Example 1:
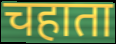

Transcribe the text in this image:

चहाता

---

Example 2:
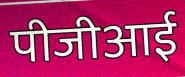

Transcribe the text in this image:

पीजीआई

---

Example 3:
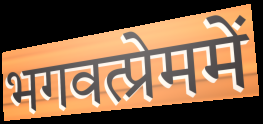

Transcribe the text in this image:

भगवत्प्रेममें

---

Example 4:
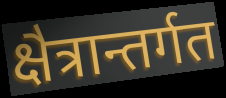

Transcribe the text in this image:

क्षैत्रान्तर्गत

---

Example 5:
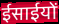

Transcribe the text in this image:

ईसाईयों